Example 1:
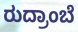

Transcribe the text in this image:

ರುದ್ರಾಂಬೆ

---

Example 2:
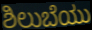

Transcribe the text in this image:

ಶಿಲುಬೆಯು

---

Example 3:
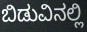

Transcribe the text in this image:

ಬಿಡುವಿನಲ್ಲಿ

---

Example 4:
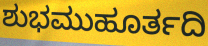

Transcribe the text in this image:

ಶುಭಮುಹೂರ್ತದಿ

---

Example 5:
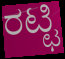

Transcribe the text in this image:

ರಟ್ಟಿ